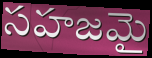
సహజమై